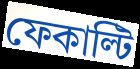
ফেকাল্টি